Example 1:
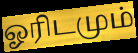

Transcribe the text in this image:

ஓரிடமும்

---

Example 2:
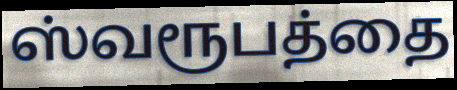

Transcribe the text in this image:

ஸ்வரூபத்தை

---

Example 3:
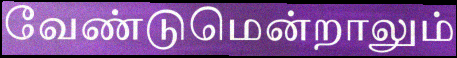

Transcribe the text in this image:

வேண்டுமென்றாலும்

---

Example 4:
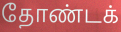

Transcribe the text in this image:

தோண்டக்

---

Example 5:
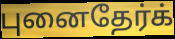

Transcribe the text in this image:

புனைதேர்க்